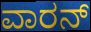
ವಾರನ್